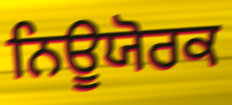
ਨਿਊਯੋਰਕ